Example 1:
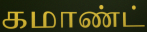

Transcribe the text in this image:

கமாண்ட்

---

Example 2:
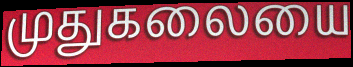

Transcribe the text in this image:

முதுகலையை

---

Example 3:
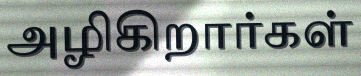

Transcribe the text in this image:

அழிகிறார்கள்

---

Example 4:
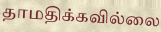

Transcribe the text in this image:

தாமதிக்கவில்லை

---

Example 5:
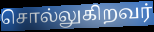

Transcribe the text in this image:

சொல்லுகிறவர்